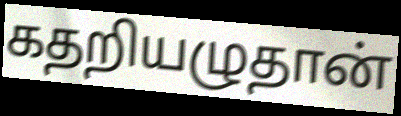
கதறியழுதான்